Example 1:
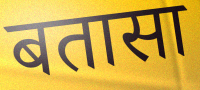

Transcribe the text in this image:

बतासा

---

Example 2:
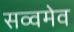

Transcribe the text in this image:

सव्वमेव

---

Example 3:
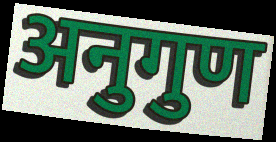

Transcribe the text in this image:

अनुगुण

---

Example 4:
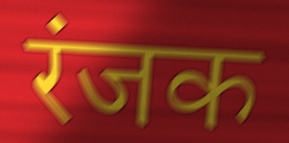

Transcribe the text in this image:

रंजक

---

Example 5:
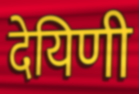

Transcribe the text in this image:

देयिणी